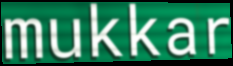
mukkar